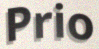
Prio